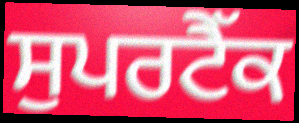
ਸੁਪਰਟੈੱਕ